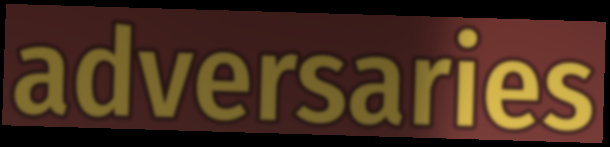
adversaries